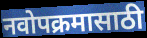
नवोपक्रमासाठी